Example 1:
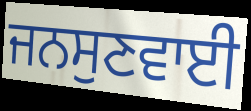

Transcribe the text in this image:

ਜਨਸੁਣਵਾਈ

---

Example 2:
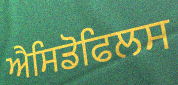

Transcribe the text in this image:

ਐਸਿਡੋਫਿਲਸ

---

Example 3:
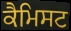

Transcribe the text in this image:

ਕੈਮਿਸਟ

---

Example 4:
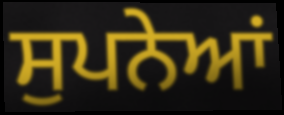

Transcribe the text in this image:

ਸੁਪਨੇਆਂ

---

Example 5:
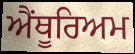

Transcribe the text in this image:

ਐਂਥੂਰਿਅਮ